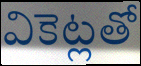
వికెట్లతో